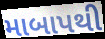
માબાપથી